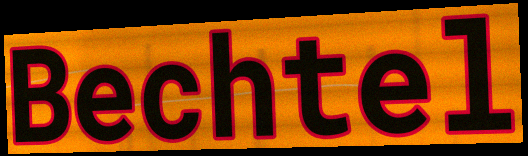
Bechtel